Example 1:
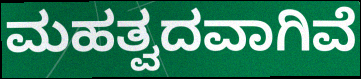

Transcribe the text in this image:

ಮಹತ್ವದವಾಗಿವೆ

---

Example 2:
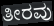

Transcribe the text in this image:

ತೀರವು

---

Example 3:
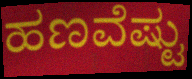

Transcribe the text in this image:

ಹಣವೆಷ್ಟು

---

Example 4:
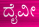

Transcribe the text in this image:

ದೈವೀ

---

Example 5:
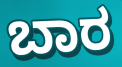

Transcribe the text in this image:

ಬಾರ